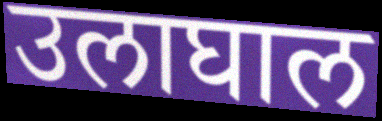
उलाघाल